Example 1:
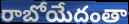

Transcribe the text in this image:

రాబోయేదంతా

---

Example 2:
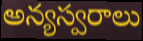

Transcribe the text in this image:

అన్యస్వరాలు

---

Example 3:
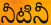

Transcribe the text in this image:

నీటినీ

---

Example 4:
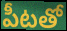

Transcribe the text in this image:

పీటతో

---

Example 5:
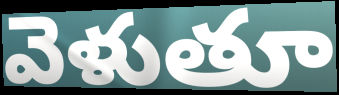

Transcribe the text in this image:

వెళుతూ